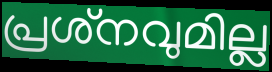
പ്രശ്‌നവുമില്ല